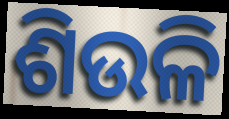
ଶିଉଳି